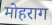
मोहराग